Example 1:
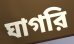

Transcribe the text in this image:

ঘাগরি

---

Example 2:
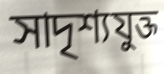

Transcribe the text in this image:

সাদৃশ্যযুক্ত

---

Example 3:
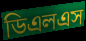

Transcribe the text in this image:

ডিএলএস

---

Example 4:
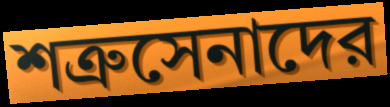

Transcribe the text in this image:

শত্রুসেনাদের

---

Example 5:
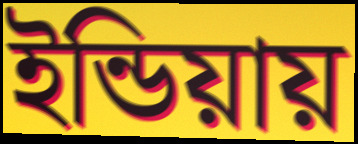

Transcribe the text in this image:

ইন্ডিয়ায়